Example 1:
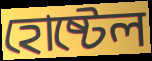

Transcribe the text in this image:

হোষ্টেল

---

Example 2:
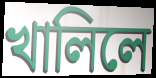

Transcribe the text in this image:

খালিলে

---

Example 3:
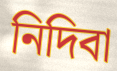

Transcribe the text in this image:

নিদিবা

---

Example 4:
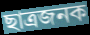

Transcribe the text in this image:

ছাত্ৰজনক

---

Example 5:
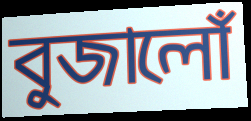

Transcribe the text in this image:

বুজালোঁ